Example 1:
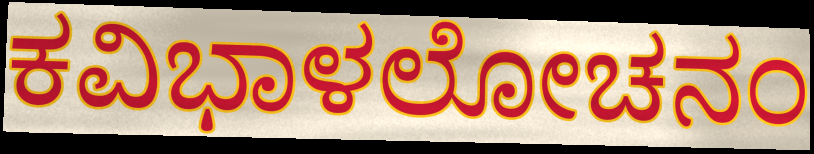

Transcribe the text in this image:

ಕವಿಭಾಳಲೋಚನಂ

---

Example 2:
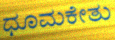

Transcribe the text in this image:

ಧೂಮಕೇತು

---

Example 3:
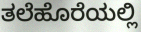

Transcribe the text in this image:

ತಲೆಹೊರೆಯಲ್ಲಿ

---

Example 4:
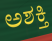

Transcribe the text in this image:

ಅಶಕ್ತಿ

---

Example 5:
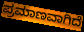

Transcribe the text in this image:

ಪ್ರಮಾಣವಾಗಿದೆ